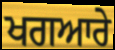
ਖਗਆਰੇ